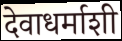
देवाधर्माशी